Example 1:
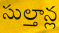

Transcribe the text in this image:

సుల్తాన్ల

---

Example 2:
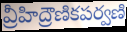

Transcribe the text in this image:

వ్రీహిద్రౌణికపర్వణి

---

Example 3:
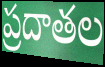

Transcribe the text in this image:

ప్రదాతల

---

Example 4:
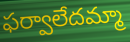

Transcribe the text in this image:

ఫర్వాలేదమ్మా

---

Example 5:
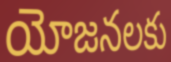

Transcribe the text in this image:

యోజనలకు